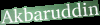
Akbaruddin